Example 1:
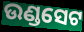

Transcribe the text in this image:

ଉଣ୍ଡସେଟ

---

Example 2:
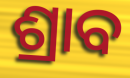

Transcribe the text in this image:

ଶ୍ରାବ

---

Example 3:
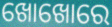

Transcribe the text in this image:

ଖୋଖୋରେ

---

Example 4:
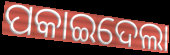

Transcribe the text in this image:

ପକାଇଦେଲା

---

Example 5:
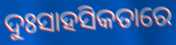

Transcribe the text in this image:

ଦୁଃସାହସିକତାରେ